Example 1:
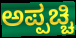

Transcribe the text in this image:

ಅಪ್ಪಚ್ಚಿ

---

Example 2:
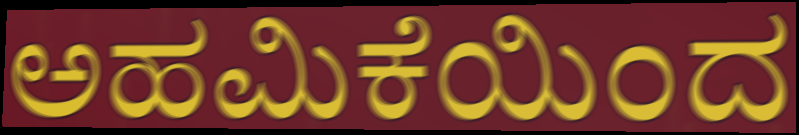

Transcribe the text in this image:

ಅಹಮಿಕೆಯಿಂದ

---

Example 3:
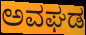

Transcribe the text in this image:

ಅವಘಡ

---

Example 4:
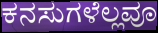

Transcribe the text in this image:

ಕನಸುಗಳೆಲ್ಲವೂ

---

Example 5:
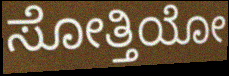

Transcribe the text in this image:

ಸೋತ್ತಿಯೋ